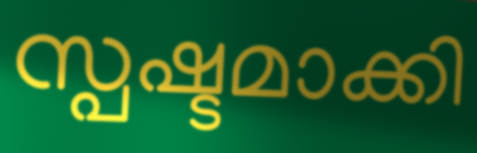
സ്പഷ്ടമാക്കി